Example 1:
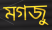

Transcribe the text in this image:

মগজু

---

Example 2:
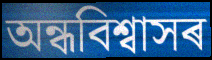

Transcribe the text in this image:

অন্ধবিশ্বাসৰ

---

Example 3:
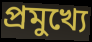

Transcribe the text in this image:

প্ৰমুখ্যে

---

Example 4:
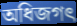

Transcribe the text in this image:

অধিজগৎ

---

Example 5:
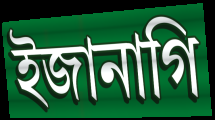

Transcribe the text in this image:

ইজানাগি